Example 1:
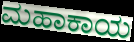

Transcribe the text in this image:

ಮಹಾಕಾಯ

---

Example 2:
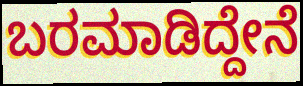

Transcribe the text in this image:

ಬರಮಾಡಿದ್ದೇನೆ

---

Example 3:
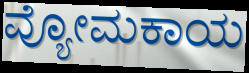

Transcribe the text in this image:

ವ್ಯೋಮಕಾಯ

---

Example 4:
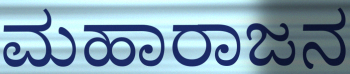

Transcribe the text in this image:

ಮಹಾರಾಜನ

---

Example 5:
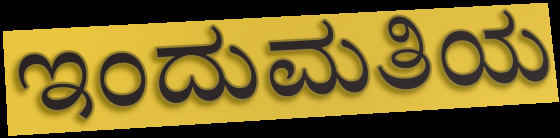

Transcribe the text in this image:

ಇಂದುಮತಿಯ